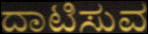
ದಾಟಿಸುವ